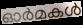
ഓർമകൾ